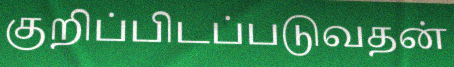
குறிப்பிடப்படுவதன்